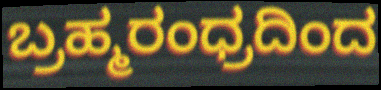
ಬ್ರಹ್ಮರಂಧ್ರದಿಂದ